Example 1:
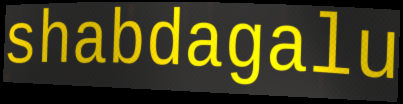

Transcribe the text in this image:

shabdagalu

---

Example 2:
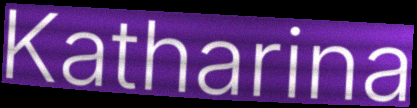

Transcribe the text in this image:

Katharina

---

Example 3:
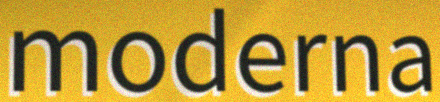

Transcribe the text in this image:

moderna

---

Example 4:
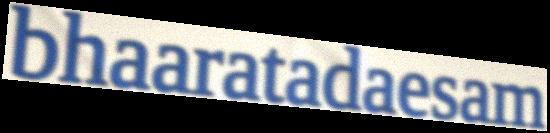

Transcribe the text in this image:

bhaaratadaesam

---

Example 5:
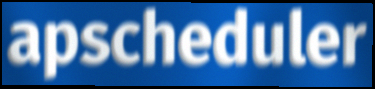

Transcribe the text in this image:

apscheduler